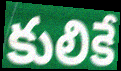
కులికే